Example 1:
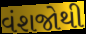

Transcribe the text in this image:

વંશજોથી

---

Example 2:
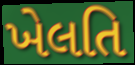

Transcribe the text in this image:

ખેલતિ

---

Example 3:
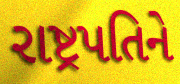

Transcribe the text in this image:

રાષ્ટ્રપતિને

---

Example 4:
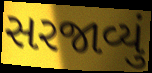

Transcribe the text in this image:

સરજાવ્યું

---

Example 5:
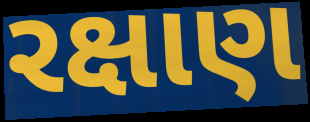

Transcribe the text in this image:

રક્ષાણ